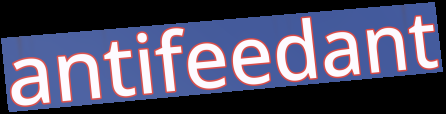
antifeedant